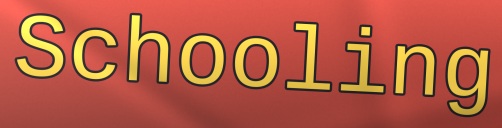
Schooling